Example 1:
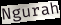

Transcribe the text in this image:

Ngurah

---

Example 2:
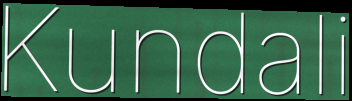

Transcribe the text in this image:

Kundali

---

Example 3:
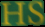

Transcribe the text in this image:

HS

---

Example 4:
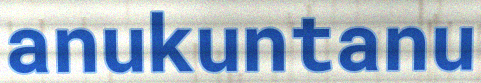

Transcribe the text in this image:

anukuntanu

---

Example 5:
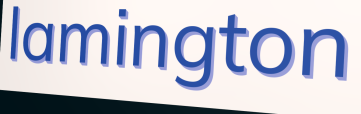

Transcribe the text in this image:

lamington